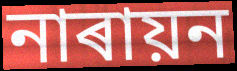
নাৰায়ন